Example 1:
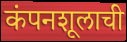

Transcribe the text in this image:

कंपनशूलाची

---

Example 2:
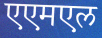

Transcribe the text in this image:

एएमएल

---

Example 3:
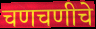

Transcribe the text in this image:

चणचणीचे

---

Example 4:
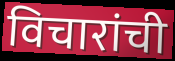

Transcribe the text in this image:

विचारांची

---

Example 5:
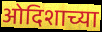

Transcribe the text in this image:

ओदिशाच्या